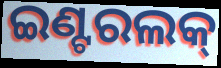
ଇଣ୍ଟରଲକ୍